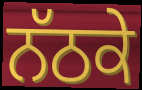
ਨੱਠਕੇ